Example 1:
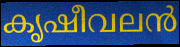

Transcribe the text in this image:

കൃഷീവലൻ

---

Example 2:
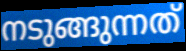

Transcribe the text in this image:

നടുങ്ങുന്നത്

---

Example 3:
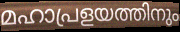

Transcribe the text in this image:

മഹാപ്രളയത്തിനും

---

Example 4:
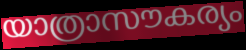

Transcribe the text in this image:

യാത്രാസൗകര്യം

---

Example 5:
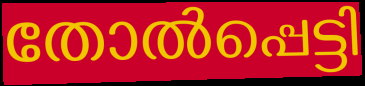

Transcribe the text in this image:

തോൽപ്പെട്ടി